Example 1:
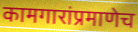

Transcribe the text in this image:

कामगारांप्रमाणेच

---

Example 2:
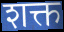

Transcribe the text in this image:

शक्त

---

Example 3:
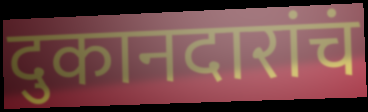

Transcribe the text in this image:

दुकानदारांचं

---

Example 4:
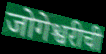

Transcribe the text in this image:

जोगेश्वरीची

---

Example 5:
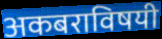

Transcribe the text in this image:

अकबराविषयी